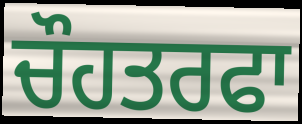
ਚੌਹਤਰਫਾ